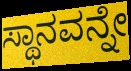
ಸ್ಥಾನವನ್ನೇ